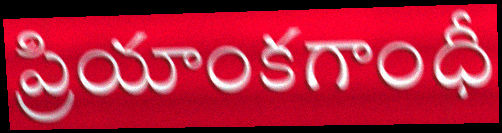
ప్రియాంకగాంధీ